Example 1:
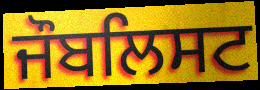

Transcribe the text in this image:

ਜੌਬਲਿਸਟ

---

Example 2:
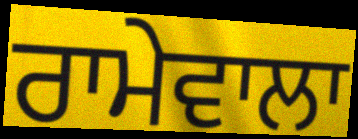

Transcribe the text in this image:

ਰਾਮੇਵਾਲਾ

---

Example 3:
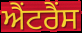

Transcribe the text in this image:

ਐਂਟਰੈਂਸ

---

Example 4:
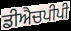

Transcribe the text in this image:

ਡੀਐਚਪੀਪੀ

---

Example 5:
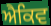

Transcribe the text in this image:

ਐਕਿਵ